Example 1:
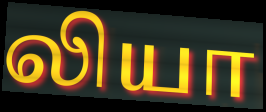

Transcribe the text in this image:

லியா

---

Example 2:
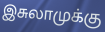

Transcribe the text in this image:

இசுலாமுக்கு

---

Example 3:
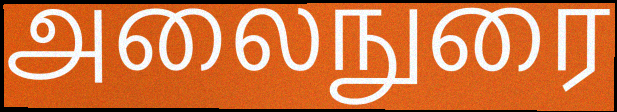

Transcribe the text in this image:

அலைநுரை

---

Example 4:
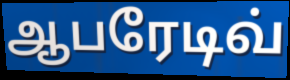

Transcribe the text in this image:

ஆபரேடிவ்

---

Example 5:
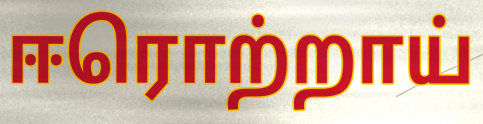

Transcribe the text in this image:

ஈரொற்றாய்